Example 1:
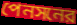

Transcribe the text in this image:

পেনসনের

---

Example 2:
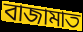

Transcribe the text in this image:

বাজামাত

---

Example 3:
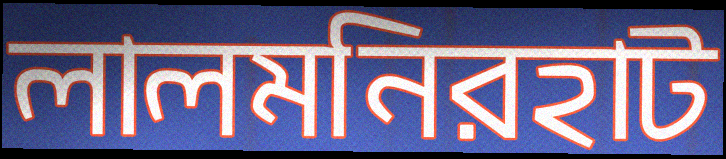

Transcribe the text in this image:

লালমনিরহাট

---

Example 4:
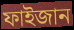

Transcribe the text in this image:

ফাইজান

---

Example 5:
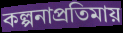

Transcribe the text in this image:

কল্পনাপ্রতিমায়